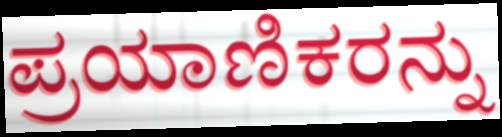
ಪ್ರಯಾಣಿಕರನ್ನು